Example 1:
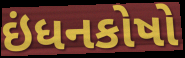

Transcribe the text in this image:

ઇંધનકોષો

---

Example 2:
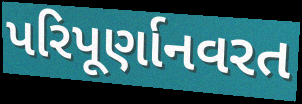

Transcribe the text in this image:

પરિપૂર્ણાનવરત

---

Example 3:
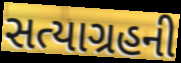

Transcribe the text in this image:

સત્યાગ્રહની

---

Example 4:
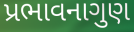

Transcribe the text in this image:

પ્રભાવનાગુણ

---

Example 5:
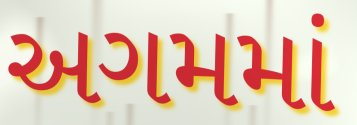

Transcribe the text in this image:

અગમમાં